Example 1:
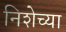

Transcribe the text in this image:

निशेच्या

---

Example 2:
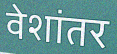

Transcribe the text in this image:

वेशांतर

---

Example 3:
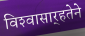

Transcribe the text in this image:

विश्वासार्हतेने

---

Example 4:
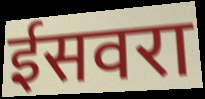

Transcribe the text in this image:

ईसवरा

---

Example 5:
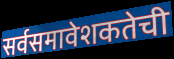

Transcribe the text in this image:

सर्वसमावेशकतेची